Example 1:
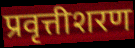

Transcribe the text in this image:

प्रवृत्तीशरण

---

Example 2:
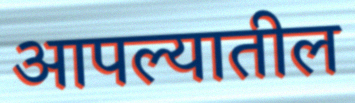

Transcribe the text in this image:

आपल्यातील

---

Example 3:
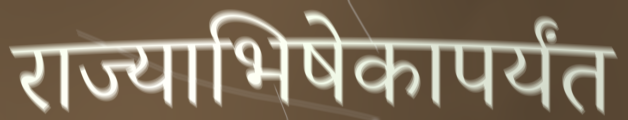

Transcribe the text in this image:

राज्याभिषेकापर्यंत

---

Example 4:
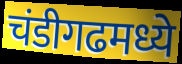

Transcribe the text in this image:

चंडीगढमध्ये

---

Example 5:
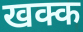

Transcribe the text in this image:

खक्क